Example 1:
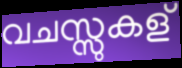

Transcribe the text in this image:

വചസ്സുകള്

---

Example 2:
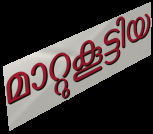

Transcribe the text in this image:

മാറ്റുകൂട്ടിയ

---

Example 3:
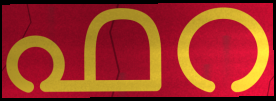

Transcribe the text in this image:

ഫറ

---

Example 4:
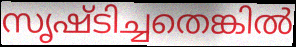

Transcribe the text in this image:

സൃഷ്ടിച്ചതെങ്കിൽ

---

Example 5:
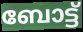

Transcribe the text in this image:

ബോട്ട്